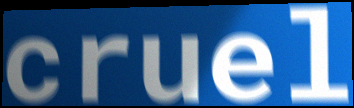
cruel